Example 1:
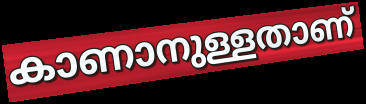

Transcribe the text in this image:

കാണാനുള്ളതാണ്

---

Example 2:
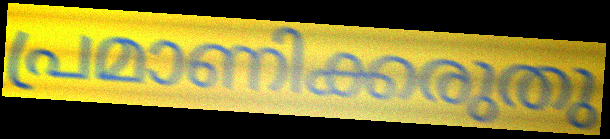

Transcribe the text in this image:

പ്രമാണിക്കരുതു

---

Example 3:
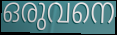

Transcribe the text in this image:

ഒരുവനെ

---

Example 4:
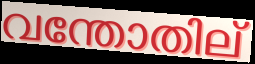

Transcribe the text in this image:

വന്തോതില്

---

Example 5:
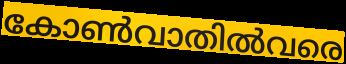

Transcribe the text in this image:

കോൺവാതിൽവരെ